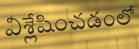
విశ్లేషించడంలో